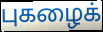
புகழைக்